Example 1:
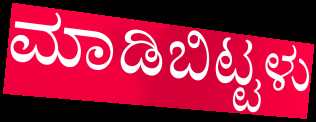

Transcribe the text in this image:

ಮಾಡಿಬಿಟ್ಟಳು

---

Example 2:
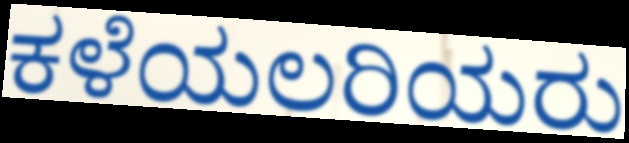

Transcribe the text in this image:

ಕಳೆಯಲರಿಯರು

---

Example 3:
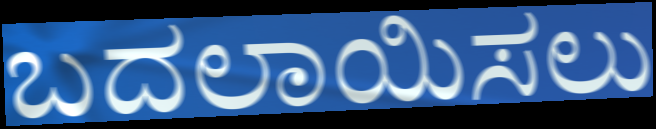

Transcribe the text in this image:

ಬದಲಾಯಿಸಲು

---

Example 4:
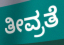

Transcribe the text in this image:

ತೀವ್ರತೆ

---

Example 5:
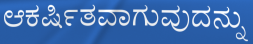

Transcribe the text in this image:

ಆಕರ್ಷಿತವಾಗುವುದನ್ನು